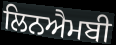
ਲਿਨਐਮਬੀ